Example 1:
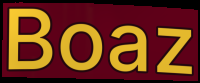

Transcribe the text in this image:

Boaz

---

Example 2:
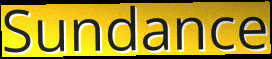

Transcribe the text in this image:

Sundance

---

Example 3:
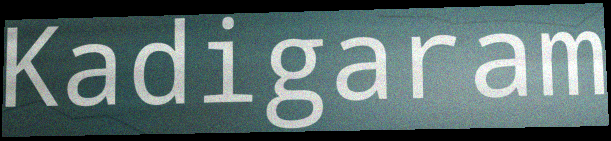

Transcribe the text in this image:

Kadigaram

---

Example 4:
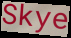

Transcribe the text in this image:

Skye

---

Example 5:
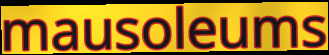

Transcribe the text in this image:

mausoleums